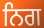
ਨਿਗ